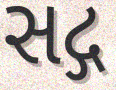
સદ્ગ